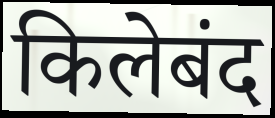
किलेबंद